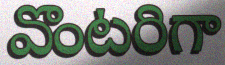
వొంటరిగా